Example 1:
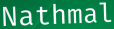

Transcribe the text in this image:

Nathmal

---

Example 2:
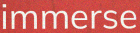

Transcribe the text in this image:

immerse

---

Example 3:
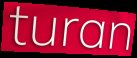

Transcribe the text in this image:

turan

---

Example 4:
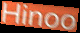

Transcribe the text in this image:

Hinoo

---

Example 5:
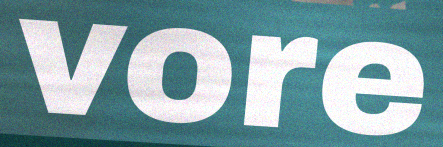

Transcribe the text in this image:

vore